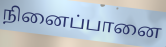
நினைப்பானை